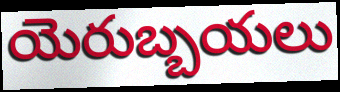
యెరుబ్బయలు